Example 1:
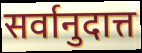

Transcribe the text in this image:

सर्वानुदात्त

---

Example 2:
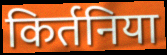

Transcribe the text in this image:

किर्तनिया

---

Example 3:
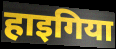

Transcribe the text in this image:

हाइगिया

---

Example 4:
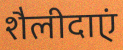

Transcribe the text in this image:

शैलीदाएं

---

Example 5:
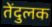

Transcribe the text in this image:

तेंदुलक